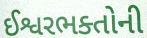
ઈશ્વરભક્તોની